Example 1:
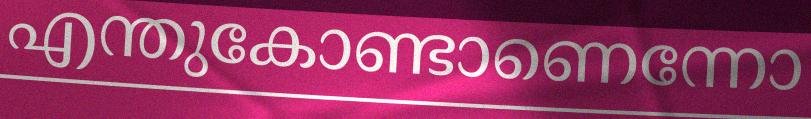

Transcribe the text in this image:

എന്തുകോണ്ടാണെന്നോ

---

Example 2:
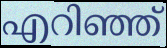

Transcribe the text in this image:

എറിഞ്ഞ്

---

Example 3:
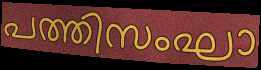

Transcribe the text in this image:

പത്തിസംഘാ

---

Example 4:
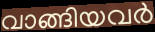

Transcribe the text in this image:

വാങ്ങിയവർ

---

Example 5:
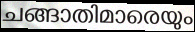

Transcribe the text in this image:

ചങ്ങാതിമാരെയും